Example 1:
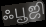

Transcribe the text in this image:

ஃபூஜி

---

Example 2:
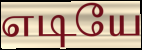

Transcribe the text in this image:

எடியே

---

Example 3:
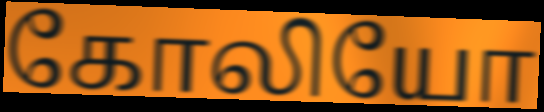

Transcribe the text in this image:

கோலியோ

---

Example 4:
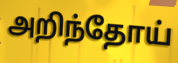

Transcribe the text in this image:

அறிந்தோய்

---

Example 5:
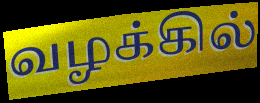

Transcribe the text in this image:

வழக்கில்